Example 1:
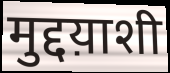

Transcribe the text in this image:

मुद्दय़ाशी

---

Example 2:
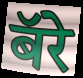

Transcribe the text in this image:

बॅरे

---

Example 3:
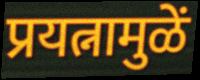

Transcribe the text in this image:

प्रयत्नामुळें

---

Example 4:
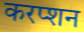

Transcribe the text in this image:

करप्शन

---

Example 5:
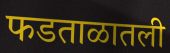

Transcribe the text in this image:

फडताळातली